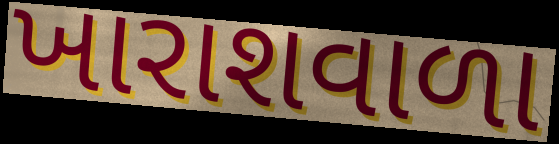
ખારાશવાળા